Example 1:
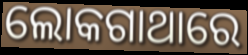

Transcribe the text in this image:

ଲୋକଗାଥାରେ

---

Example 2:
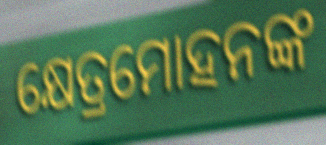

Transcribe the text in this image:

କ୍ଷେତ୍ରମୋହନଙ୍କ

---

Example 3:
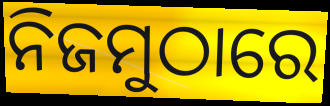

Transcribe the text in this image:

ନିଜମୁଠାରେ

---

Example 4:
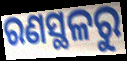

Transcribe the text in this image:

ରଣସ୍ଥଳରୁ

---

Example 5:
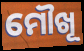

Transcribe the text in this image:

ମୌଖୂ